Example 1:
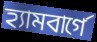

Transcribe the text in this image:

হ্যামবার্গে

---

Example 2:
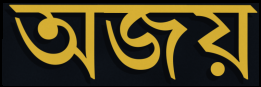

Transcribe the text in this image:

অজয়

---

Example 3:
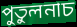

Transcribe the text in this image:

পুতুলনাচ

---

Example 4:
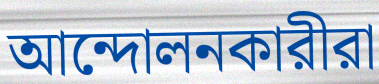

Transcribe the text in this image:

আন্দোলনকারীরা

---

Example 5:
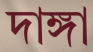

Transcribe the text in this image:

দাঙ্গা